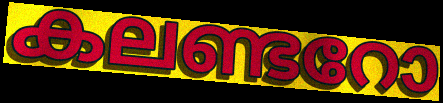
കലണ്ടറോ